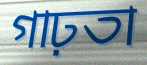
গাঢ়তা